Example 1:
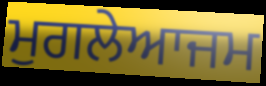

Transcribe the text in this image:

ਮੁਗਲੇਆਜਮ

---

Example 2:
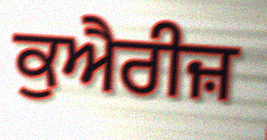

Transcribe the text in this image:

ਕੁਐਰੀਜ਼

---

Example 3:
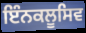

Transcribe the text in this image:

ਇੰਨਕਲੂਸਿਵ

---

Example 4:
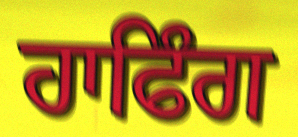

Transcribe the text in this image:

ਹਾਫਿੰਗ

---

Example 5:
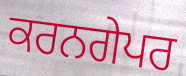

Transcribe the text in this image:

ਕਰਨਗੇਪਰ